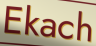
Ekach